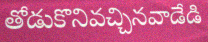
తోడుకొనివచ్చినవాడేడి